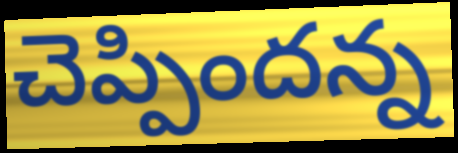
చెప్పిందన్న